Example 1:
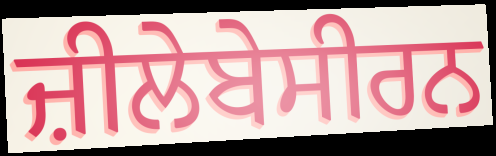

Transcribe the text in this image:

ਜ਼ੀਲੇਬੇਸੀਰਨ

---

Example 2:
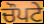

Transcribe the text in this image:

ਚੌਪਟੇ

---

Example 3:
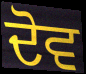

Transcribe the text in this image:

ਦੋਵ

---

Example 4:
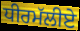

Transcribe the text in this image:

ਧੀਰਮੱਲੀਏ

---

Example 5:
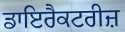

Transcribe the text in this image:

ਡਾਇਰੈਕਟਰੀਜ਼